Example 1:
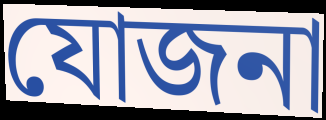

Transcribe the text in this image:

যোজনা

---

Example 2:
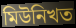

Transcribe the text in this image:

মিউনিখত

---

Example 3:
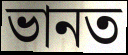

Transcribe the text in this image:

ভানত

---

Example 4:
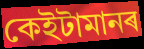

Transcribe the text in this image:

কেইটামানৰ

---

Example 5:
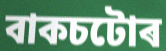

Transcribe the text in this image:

বাকচটোৰ